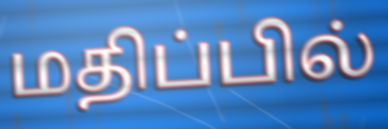
மதிப்பில்